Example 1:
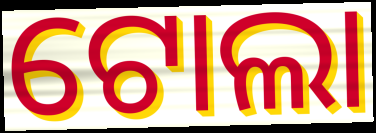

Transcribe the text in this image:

ଟୋଲା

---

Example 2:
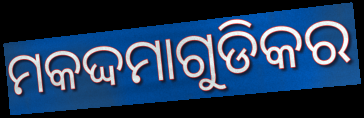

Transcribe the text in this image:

ମକଦ୍ଦମାଗୁଡିକର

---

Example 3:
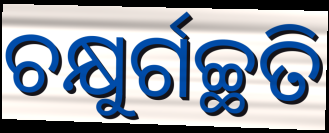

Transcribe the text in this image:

ଚକ୍ଷୁର୍ଗଚ୍ଛତି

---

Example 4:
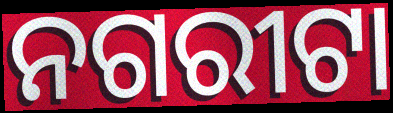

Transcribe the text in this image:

ନଗରୀଟା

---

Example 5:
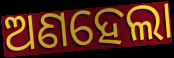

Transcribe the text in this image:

ଅଣହେଲା